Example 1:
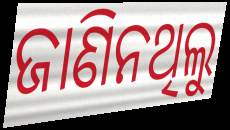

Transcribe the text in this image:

ଜାଣିନଥିଲୁ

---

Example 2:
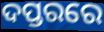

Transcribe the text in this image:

ଦପ୍ତରରେ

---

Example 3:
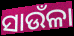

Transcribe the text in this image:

ସାଉଁଳା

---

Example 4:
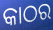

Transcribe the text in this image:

କାଠର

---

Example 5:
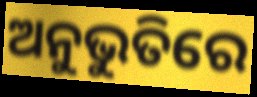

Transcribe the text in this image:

ଅନୁଭୁତିରେ